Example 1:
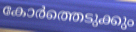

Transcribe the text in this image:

കോർത്തെടുക്കും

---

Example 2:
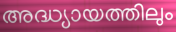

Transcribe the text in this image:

അദ്ധ്യായത്തിലും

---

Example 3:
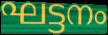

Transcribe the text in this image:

ഘട്ടനം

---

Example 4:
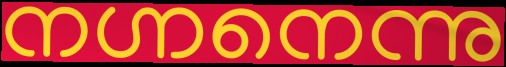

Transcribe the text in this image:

നഗ്നനെന്നു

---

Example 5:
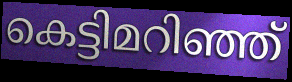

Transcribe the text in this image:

കെട്ടിമറിഞ്ഞ്